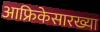
आफ्रिकेसारख्या